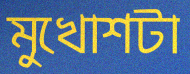
মুখোশটা